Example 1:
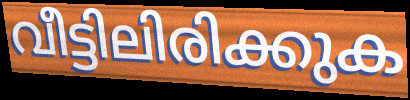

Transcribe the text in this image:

വീട്ടിലിരിക്കുക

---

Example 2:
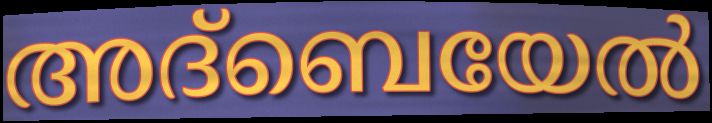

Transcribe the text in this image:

അദ്ബെയേൽ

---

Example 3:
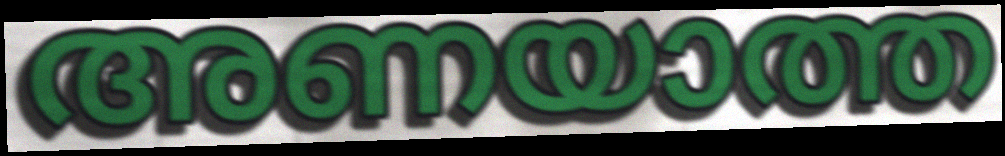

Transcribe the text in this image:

അണയാത്ത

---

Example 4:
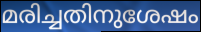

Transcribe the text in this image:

മരിച്ചതിനുശേഷം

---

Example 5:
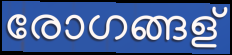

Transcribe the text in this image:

രോഗങ്ങള്